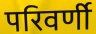
परिवर्णी